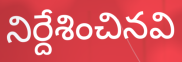
నిర్దేశించినవి